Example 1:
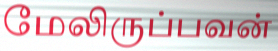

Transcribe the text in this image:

மேலிருப்பவன்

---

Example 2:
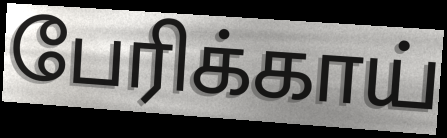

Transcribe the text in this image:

பேரிக்காய்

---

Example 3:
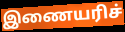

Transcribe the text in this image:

இணையரிச்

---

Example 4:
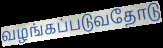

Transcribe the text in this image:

வழங்கப்படுவதோடு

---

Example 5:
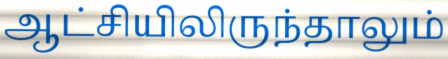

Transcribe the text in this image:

ஆட்சியிலிருந்தாலும்